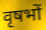
वृषभों